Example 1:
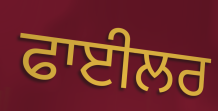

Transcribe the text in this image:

ਫਾਈਲਰ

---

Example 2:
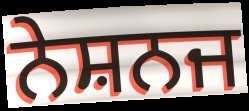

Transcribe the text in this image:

ਨੇਸ਼ਨਜ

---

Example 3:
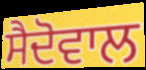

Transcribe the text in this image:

ਸੈਦੋਵਾਲ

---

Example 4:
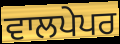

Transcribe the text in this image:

ਵਾਲਪੇਪਰ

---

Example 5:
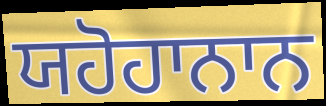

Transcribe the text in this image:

ਯਹੋਹਾਨਾਨ